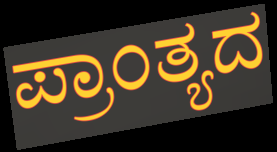
ಪ್ರಾಂತ್ಯದ